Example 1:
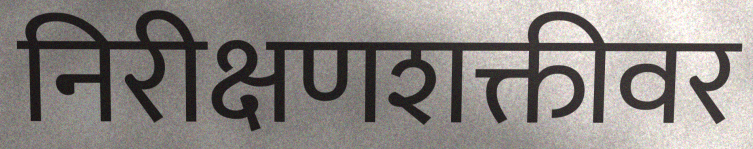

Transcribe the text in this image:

निरीक्षणशक्तीवर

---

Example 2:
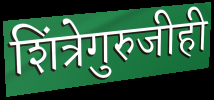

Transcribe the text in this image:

शिंत्रेगुरुजीही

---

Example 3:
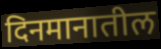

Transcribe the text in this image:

दिनमानातील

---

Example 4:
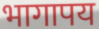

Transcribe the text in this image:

भागापय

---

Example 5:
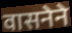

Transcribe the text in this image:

वासनेने